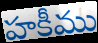
హకీము